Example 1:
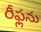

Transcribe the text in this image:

రీఫ్లను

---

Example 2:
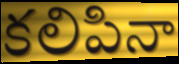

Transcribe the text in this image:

కలిపినా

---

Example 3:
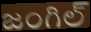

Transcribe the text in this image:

జంగిల్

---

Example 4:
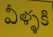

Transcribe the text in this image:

వీళ్ళకి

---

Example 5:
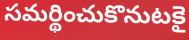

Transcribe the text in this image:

సమర్థించుకొనుటకై